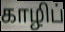
காழிப்